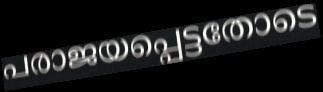
പരാജയപ്പെട്ടതോടെ